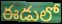
ఈడులో